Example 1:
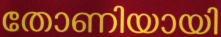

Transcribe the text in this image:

തോണിയായി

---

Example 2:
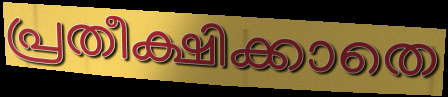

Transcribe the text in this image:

പ്രതീക്ഷിക്കാതെ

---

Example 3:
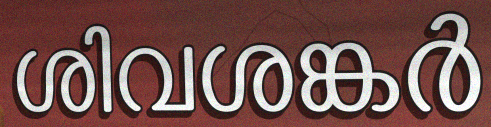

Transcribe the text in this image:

ശിവശങ്കർ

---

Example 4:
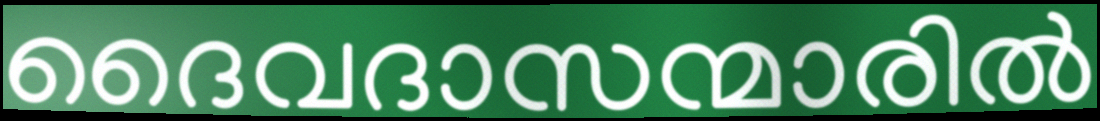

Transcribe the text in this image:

ദൈവദാസന്മാരിൽ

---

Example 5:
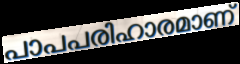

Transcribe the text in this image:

പാപപരിഹാരമാണ്